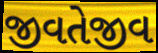
જીવતેજીવ